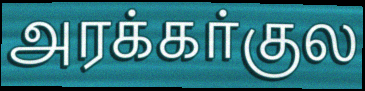
அரக்கர்குல